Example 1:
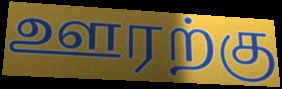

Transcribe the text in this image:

ஊரற்கு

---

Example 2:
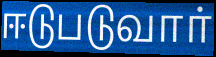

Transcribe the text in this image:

ஈடுபடுவார்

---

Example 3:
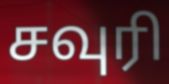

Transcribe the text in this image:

சவுரி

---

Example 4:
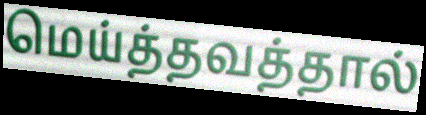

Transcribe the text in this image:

மெய்த்தவத்தால்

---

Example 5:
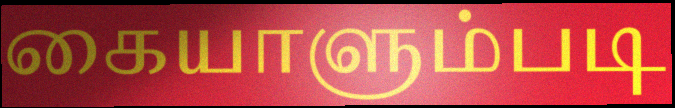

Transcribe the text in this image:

கையாளும்படி